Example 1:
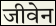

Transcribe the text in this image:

जीवेन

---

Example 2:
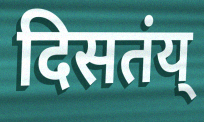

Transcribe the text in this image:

दिसतंय्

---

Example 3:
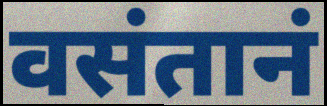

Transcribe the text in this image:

वसंतानं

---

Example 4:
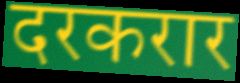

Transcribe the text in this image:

दरकरार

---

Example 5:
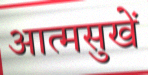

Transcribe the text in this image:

आत्मसुखें